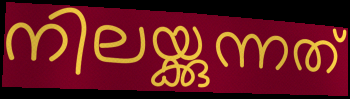
നിലയ്ക്കുന്നത്